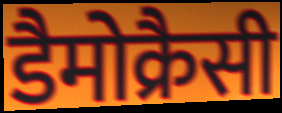
डैमोक्रैसी